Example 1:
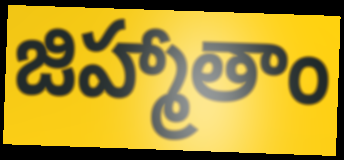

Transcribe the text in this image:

జిహ్మాతాం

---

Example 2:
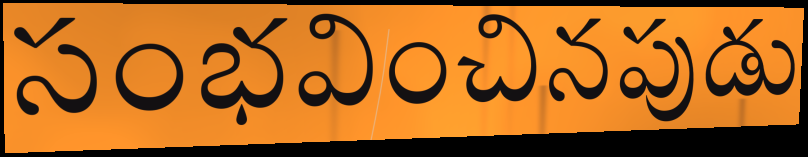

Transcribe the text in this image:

సంభవించినపుడు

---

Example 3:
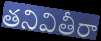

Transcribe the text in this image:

తనివితీరా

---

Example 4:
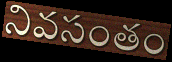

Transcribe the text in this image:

నివసంతం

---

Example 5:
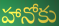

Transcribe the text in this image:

హానోకు